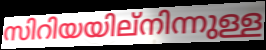
സിറിയയില്നിന്നുള്ള